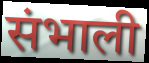
संभाली